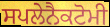
ਸਪਲੇਨੈਕਟੋਮੀ